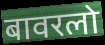
बावरलो